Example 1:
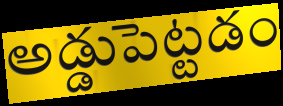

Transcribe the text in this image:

అడ్డుపెట్టడం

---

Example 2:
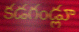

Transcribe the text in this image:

కడగండ్లూ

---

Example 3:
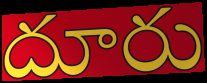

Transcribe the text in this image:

దూరు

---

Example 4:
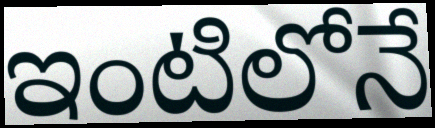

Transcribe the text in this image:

ఇంటిలోనే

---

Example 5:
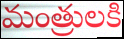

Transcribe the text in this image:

మంత్రులకి